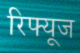
रिफ्यूज